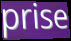
prise